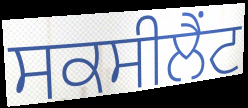
ਸਕਸੀਲੈਂਟ